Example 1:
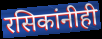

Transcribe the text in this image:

रसिकांनीही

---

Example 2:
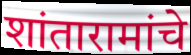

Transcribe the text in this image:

शांतारामांचे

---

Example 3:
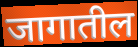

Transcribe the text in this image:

जागातील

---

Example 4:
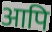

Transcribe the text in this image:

आपि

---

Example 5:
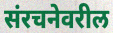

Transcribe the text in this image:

संरचनेवरील